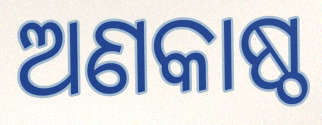
ଅଣକାଷ୍ଠ